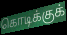
கொடிக்குக்